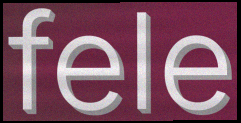
fele